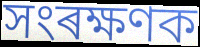
সংৰক্ষণক